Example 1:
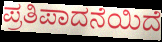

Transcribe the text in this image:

ಪ್ರತಿಪಾದನೆಯಿದೆ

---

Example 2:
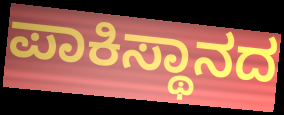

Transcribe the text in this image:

ಪಾಕಿಸ್ಥಾನದ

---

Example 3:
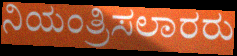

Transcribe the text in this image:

ನಿಯಂತ್ರಿಸಲಾರರು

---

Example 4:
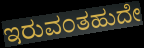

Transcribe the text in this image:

ಇರುವಂತಹುದೇ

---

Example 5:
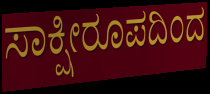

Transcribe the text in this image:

ಸಾಕ್ಷೀರೂಪದಿಂದ